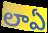
లాఏ